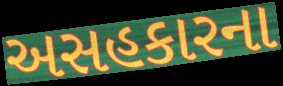
અસહકારના